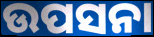
ଉପସନା